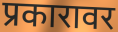
प्रकारावर